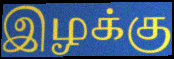
இழக்கு